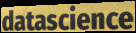
datascience